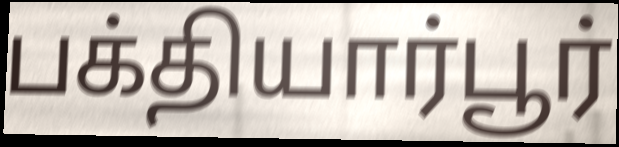
பக்தியார்பூர்